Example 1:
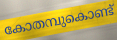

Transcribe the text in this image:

കോതമ്പുകൊണ്ട്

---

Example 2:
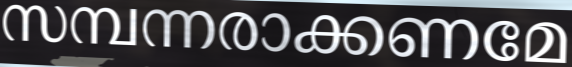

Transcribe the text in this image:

സമ്പന്നരാക്കണമേ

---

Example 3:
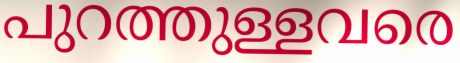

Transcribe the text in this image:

പുറത്തുള്ളവരെ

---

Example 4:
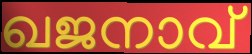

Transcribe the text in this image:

ഖജനാവ്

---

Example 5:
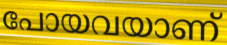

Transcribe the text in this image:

പോയവയാണ്